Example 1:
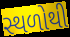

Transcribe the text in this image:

સ્થળોથી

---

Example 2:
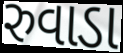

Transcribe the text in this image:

રુવાડા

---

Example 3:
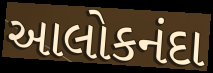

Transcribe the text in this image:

આલોકનંદા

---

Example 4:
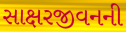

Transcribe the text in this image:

સાક્ષરજીવનની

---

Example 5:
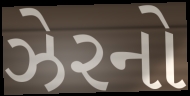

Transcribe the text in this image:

ઝેરનો